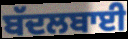
ਬੱਦਲਬਾਈ